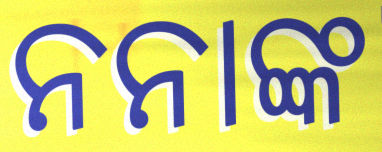
ନନାଙ୍କ